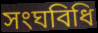
সংঘবিধি